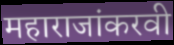
महाराजांकरवी